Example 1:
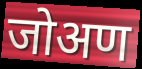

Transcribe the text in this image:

जोअण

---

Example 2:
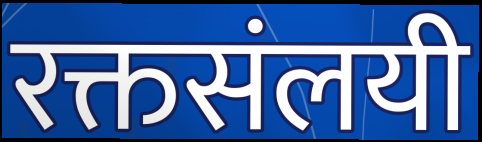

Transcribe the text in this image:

रक्तसंलयी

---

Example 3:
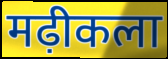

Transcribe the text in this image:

मढ़ीकला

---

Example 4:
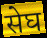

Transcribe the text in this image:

सेघ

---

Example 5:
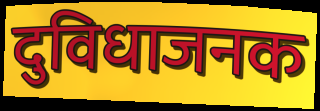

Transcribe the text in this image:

दुविधाजनक